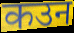
कउन